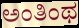
ಅಂತಿಂಥ